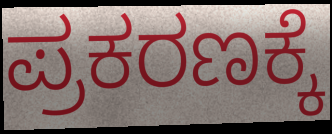
ಪ್ರಕರಣಕ್ಕೆ